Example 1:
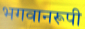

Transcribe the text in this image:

भगवानरूपी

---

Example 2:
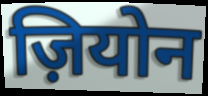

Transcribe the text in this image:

ज़ियोन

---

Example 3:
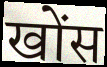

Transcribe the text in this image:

खोंस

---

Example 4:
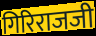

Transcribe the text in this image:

गिरिराजजी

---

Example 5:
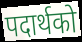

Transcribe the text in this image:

पदार्थको